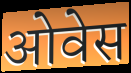
ओवेस